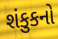
શંકુકનો